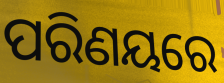
ପରିଣୟରେ